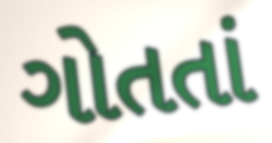
ગોતતાં